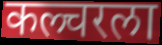
कल्चरला